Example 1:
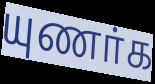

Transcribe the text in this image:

யுணர்க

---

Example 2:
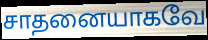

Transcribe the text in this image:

சாதனையாகவே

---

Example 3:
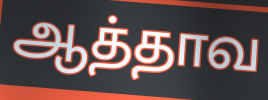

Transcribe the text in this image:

ஆத்தாவ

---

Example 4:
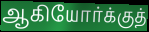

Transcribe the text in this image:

ஆகியோர்க்குத்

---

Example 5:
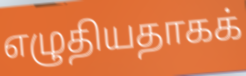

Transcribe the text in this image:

எழுதியதாகக்